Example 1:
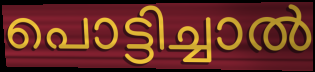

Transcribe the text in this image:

പൊട്ടിച്ചാൽ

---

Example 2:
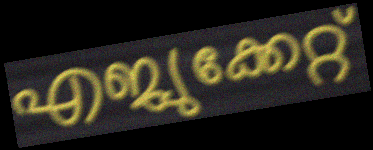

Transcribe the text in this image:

എജ്യുക്കേറ്റ്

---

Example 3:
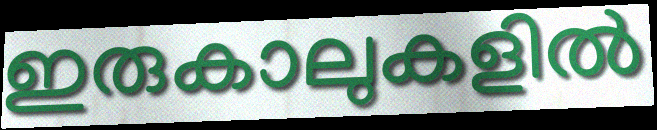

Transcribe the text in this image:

ഇരുകാലുകളിൽ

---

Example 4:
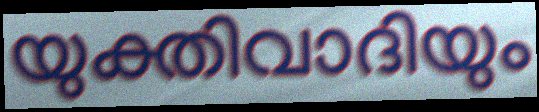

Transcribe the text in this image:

യുക്തിവാദിയും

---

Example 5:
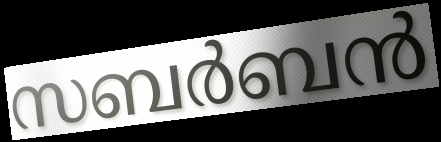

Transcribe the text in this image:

സബർബൻ